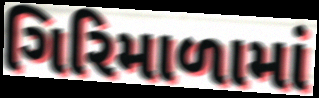
ગિરિમાળામાં